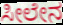
ಸೀಲೇನ